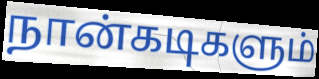
நான்கடிகளும்